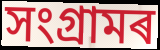
সংগ্ৰামৰ